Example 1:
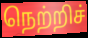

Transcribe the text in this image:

நெற்றிச்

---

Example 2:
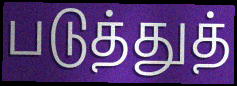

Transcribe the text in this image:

படுத்துத்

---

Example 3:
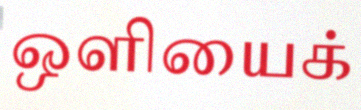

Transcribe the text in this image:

ஒளியைக்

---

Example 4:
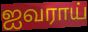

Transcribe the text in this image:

ஐவராய்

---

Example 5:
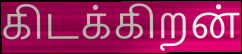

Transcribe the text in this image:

கிடக்கிறன்